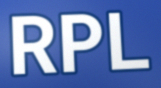
RPL